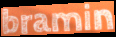
bramin